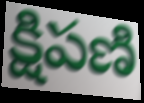
క్షిపణి